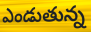
ఎండుతున్న